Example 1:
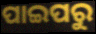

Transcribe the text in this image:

ପାଇପରୁ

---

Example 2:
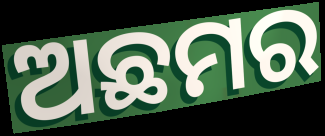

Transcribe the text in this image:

ଅଛମର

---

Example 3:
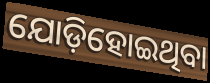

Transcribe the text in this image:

ଯୋଡ଼ିହୋଇଥିବା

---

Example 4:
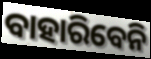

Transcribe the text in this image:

ବାହାରିବେନି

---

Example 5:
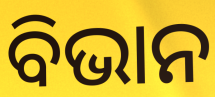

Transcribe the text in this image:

ବିଭାନ